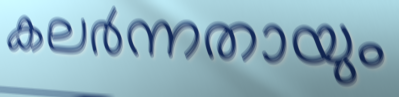
കലർന്നതായും